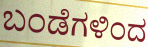
ಬಂಡೆಗಳಿಂದ